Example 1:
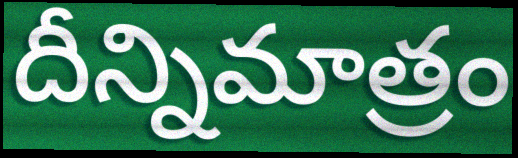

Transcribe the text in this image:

దీన్నిమాత్రం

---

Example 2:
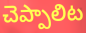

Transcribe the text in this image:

చెప్పాలిట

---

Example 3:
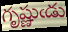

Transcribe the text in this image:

గృష్ణుఁడు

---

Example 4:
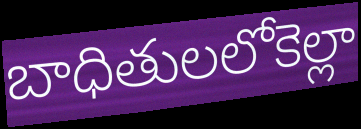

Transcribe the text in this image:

బాధితులలోకెల్లా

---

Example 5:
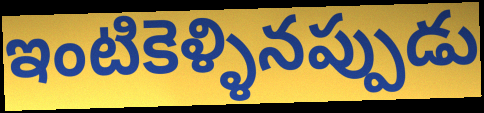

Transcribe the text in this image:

ఇంటికెళ్ళినప్పుడు